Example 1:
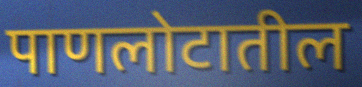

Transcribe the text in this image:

पाणलोटातील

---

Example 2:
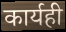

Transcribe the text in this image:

कार्यही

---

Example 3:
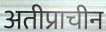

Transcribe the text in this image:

अतीप्राचीन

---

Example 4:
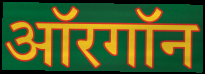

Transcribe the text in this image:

ऑरगॉन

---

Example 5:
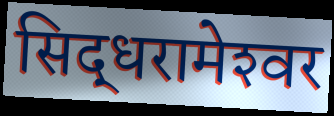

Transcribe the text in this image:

सिद्धरामेश्वर